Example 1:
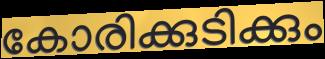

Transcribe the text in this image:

കോരിക്കുടിക്കും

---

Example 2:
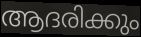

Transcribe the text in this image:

ആദരിക്കും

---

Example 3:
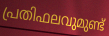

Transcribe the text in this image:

പ്രതിഫലവുമുണ്ട്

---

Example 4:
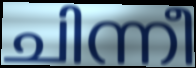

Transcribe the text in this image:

ചിന്നീ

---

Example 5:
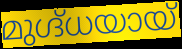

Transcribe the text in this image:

മുഗ്ദ്ധയായ്